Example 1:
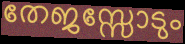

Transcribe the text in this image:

തേജസ്സോടും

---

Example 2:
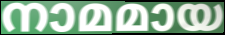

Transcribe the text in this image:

നാമമായ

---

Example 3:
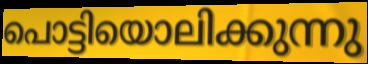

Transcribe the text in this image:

പൊട്ടിയൊലിക്കുന്നു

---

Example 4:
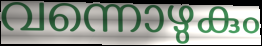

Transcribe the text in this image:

വന്നൊഴുകും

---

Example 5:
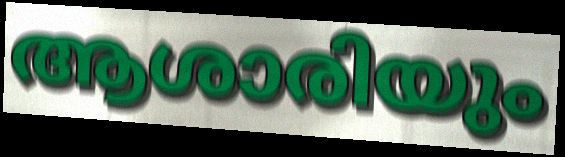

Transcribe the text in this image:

ആശാരിയും